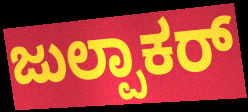
ಜುಲ್ಪಾಕರ್